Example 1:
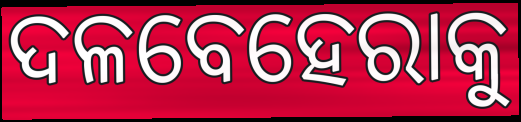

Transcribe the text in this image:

ଦଳବେହେରାକୁ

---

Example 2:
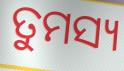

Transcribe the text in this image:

ତୁମସ୍ୟ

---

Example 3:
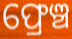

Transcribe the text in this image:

ଫ୍ରେଞ୍ଚ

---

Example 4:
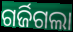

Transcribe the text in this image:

ଗର୍ଜିଗଲା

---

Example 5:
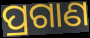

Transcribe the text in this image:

ପ୍ରଗାଣ